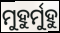
ମୁହୁର୍ମୁହୁ